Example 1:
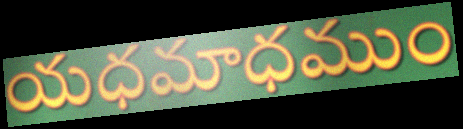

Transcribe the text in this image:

యధమాధముం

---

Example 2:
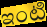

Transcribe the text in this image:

ఇంటి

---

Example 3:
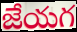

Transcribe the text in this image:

జేయగ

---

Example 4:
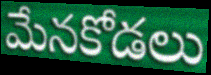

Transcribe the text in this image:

మేనకోడలు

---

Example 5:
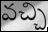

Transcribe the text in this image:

వచ్చి